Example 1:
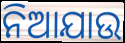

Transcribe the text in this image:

ନିଆଯାଉ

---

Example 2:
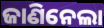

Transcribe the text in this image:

ଜାଣିନେଲା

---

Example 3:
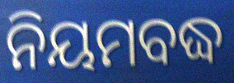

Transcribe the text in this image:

ନିୟମବଦ୍ଧ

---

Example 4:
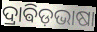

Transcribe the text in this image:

ଦ୍ରାଵିଡ଼ଭାଷା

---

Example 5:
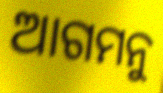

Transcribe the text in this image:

ଆଗମନୁ